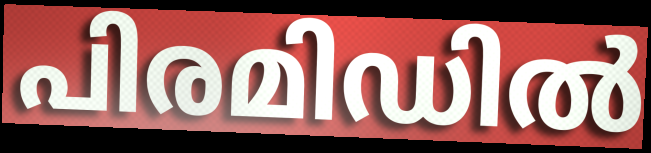
പിരമിഡിൽ